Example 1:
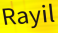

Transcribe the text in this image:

Rayil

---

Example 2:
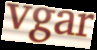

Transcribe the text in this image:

vgar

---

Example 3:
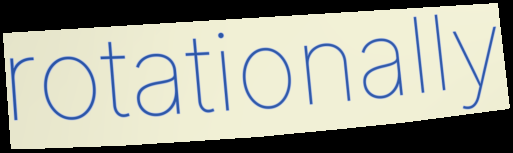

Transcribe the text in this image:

rotationally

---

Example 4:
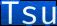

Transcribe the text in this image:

Tsu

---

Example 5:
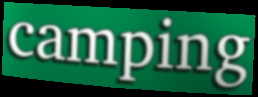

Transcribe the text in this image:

camping